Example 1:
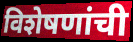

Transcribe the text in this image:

विशेषणांची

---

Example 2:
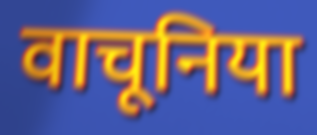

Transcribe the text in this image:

वाचूनिया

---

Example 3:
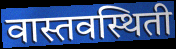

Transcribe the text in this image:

वास्तवस्थिती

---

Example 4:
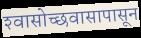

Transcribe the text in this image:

श्वासोच्छवासापासून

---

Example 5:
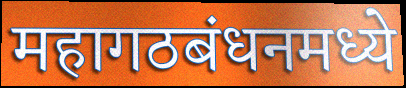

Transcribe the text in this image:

महागठबंधनमध्ये